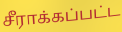
சீராக்கப்பட்ட